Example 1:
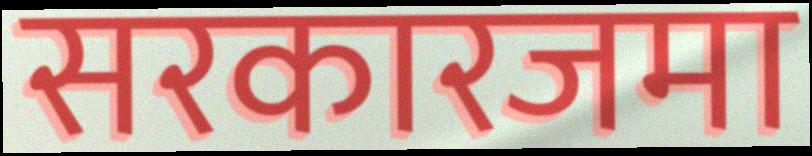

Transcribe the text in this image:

सरकारजमा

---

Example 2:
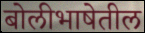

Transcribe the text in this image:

बोलीभाषेतील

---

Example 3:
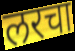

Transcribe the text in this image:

लरचा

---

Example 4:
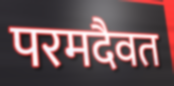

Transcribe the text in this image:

परमदैवत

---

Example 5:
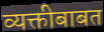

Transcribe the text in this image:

व्यक्तीबाबत